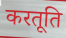
करतूति